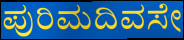
ಪುರಿಮದಿವಸೇ